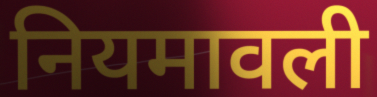
नियमावली